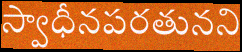
స్వాధీనపరతునని